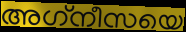
അഗ്‌നീസയെ